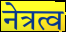
नेत्रत्व